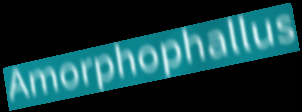
Amorphophallus